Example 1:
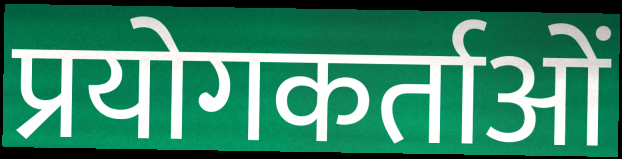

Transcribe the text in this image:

प्रयोगकर्ताओं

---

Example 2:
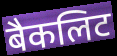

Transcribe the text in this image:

बैकलिट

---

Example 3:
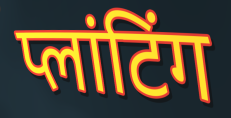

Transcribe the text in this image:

प्लांटिंग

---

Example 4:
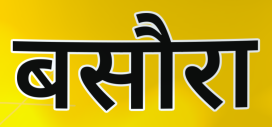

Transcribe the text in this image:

बसौरा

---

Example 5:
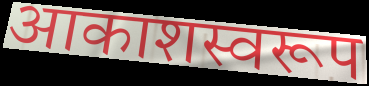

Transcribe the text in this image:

आकाशस्वरूप